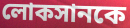
লোকসানকে